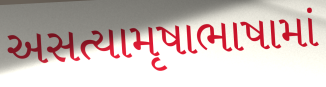
અસત્યામૃષાભાષામાં